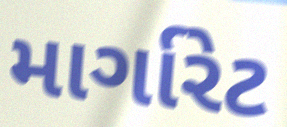
માર્ગારેટ